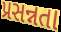
પ્રસન્નતા